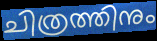
ചിത്രത്തിനും